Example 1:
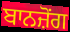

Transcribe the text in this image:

ਬਾਨਜ਼ੋਂਗ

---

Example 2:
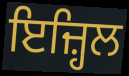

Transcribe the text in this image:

ਇਜ਼੍ਹਿਲ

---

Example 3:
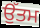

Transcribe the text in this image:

ਉੱਤਮ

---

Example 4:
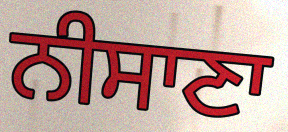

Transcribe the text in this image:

ਨੀਸਾਣਾ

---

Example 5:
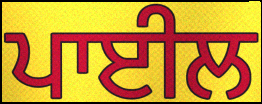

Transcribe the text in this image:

ਪਾਈਲ